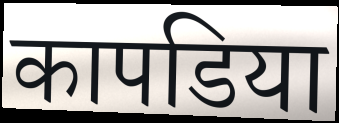
कापडिया